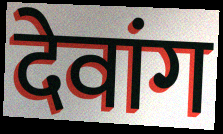
देवांग